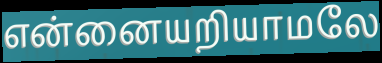
என்னையறியாமலே